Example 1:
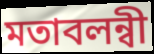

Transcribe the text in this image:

মতাবলন্বী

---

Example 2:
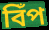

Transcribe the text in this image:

বিঁপ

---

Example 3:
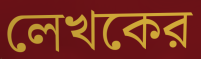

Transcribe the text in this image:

লেখকের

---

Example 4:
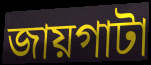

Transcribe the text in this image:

জায়গাটা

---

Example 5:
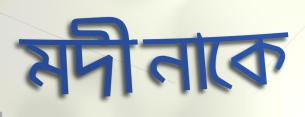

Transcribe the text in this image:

মদীনাকে